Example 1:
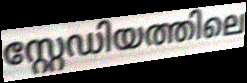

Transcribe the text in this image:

സ്റ്റേഡിയത്തിലെ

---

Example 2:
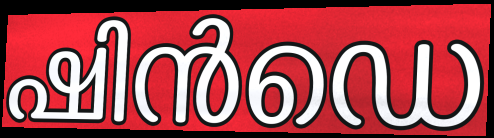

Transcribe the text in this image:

ഷിൻഡെ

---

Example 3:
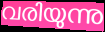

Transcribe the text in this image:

വരിയുന്നു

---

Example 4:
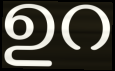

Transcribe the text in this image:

ഉറ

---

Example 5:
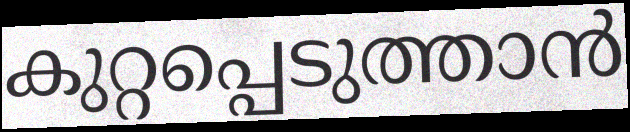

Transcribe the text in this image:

കുറ്റപ്പെടുത്താൻ